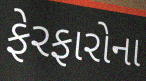
ફેરફારોના